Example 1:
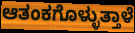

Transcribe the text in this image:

ಆತಂಕಗೊಳ್ಳುತ್ತಾಳೆ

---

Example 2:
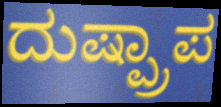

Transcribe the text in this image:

ದುಷ್ಪ್ರಾಪ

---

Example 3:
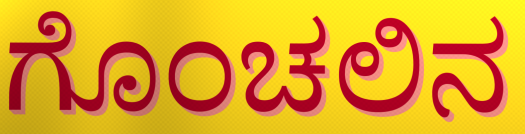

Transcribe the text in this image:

ಗೊಂಚಲಿನ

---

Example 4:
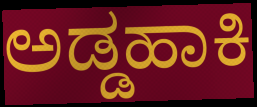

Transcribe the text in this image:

ಅಡ್ಡಹಾಕಿ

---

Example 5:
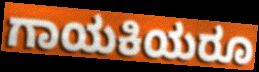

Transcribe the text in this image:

ಗಾಯಕಿಯರೂ